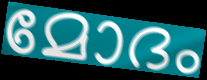
മോദം